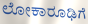
ಲೋಕಾರೂಢಿಗೆ